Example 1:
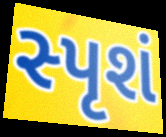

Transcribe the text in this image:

સ્પૃશં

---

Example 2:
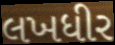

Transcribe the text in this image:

લખધીર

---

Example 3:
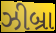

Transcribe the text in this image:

ઝીબ્રા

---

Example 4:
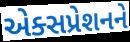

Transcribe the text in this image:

એક્સપ્રેશનને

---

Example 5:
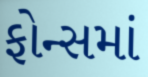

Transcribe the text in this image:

ફોન્સમાં